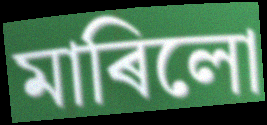
মাৰিলো